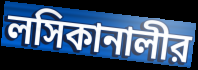
লসিকানালীর